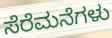
ಸೆರೆಮನೆಗಳು